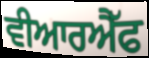
ਵੀਆਰਐੱਫ